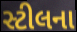
સ્ટીલના